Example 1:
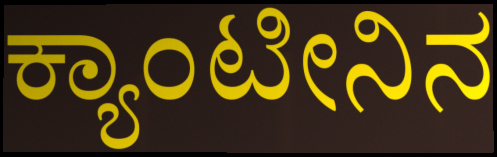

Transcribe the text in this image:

ಕ್ಯಾಂಟೀನಿನ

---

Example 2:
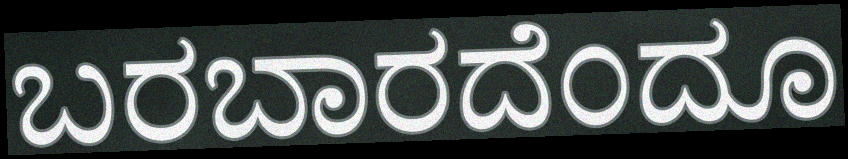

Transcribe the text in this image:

ಬರಬಾರದೆಂದೂ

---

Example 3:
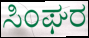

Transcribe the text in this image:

ಸಿಂಘರ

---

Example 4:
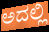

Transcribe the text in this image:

ಅದಲ್ಲಿ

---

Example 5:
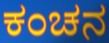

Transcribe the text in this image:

ಕಂಚನ